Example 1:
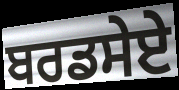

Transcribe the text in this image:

ਬਰਡਸੇਏ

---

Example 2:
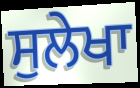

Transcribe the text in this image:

ਸੁਲੇਖਾ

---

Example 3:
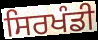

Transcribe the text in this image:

ਸਿਰਖੰਡੀ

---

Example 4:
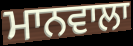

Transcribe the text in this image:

ਮਾਨਵਾਲਾ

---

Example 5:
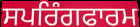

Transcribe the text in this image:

ਸਪਰਿੰਗਫਾਰਮ